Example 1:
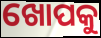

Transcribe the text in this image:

ଖୋପକୁ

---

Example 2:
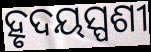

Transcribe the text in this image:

ହୃଦୟସ୍ପଶୀ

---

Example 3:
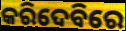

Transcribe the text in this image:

କରିଦେବିରେ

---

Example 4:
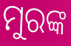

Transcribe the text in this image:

ମୁରଙ୍କ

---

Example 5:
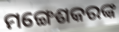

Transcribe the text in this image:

ମଙ୍ଗେଶକରଙ୍କ